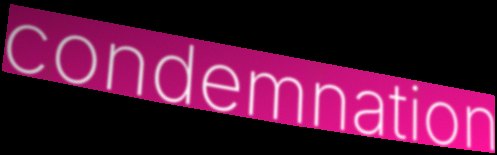
condemnation